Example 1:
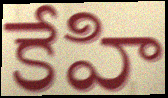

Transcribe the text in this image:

కేహి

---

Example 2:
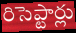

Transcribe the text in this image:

రిసెప్టార్లు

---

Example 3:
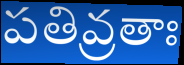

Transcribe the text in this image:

పతివ్రతాః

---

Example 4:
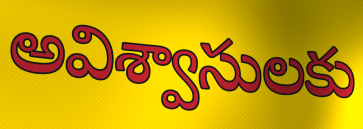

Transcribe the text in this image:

అవిశ్వాసులకు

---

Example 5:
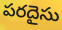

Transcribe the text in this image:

పరదైసు